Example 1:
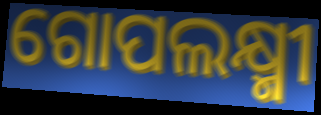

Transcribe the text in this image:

ଗୋପଲକ୍ଷ୍ମୀ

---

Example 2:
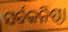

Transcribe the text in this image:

ସର୍ବକନିଷ୍ଠା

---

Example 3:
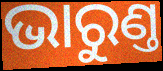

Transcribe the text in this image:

ଭାରୁଣ୍ତ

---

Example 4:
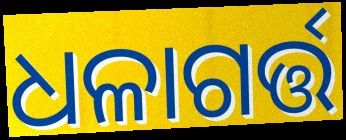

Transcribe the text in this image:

ଧଳାଗର୍ତ୍ତ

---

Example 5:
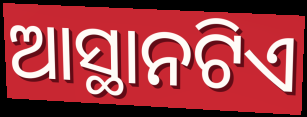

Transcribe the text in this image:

ଆସ୍ଥାନଟିଏ